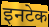
इनटेक